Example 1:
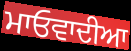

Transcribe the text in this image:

ਮਾਓਵਾਦੀਆ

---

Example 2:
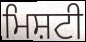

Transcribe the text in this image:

ਮਿਸ਼ਟੀ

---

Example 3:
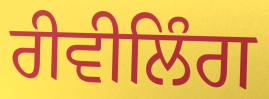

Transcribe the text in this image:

ਰੀਵੀਲਿੰਗ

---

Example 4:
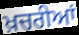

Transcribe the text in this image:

ਖ਼ਚਰੀਆਂ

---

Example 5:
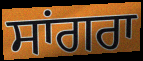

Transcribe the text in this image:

ਸਾਂਗਰਾ